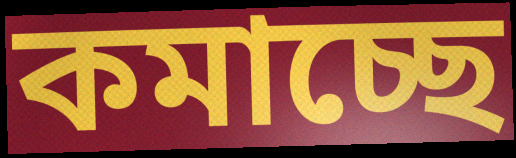
কমাচ্ছে